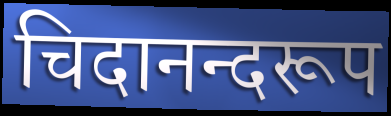
चिदानन्दरूप